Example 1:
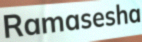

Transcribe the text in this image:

Ramasesha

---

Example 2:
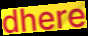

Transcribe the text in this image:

dhere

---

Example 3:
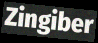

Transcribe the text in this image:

Zingiber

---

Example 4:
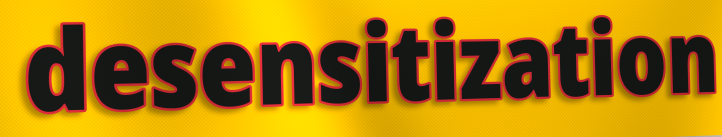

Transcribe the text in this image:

desensitization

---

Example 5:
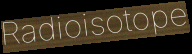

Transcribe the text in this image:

Radioisotope